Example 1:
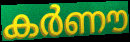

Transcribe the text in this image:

കർണൗ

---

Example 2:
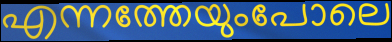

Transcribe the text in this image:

എന്നത്തേയുംപോലെ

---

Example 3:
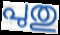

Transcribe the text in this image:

പുതു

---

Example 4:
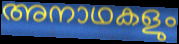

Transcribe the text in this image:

അനാഥകളും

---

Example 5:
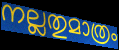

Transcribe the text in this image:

നല്ലതുമാത്രം